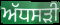
ਅੱਧਸੜੀ